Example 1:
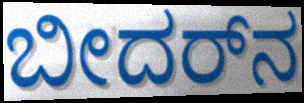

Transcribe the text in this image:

ಬೀದರ್‌ನ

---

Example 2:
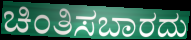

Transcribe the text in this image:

ಚಿಂತಿಸಬಾರದು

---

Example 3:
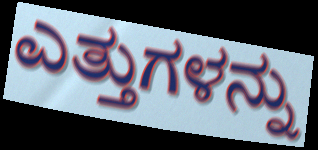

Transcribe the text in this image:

ಎತ್ತುಗಳನ್ನು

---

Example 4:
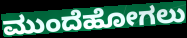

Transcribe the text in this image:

ಮುಂದೆಹೋಗಲು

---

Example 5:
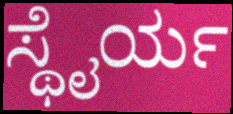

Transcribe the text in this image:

ಸ್ಥೈರ್ಯ